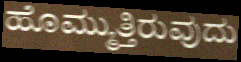
ಹೊಮ್ಮುತ್ತಿರುವುದು